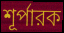
শূর্পারক